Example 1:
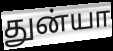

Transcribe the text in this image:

துன்யா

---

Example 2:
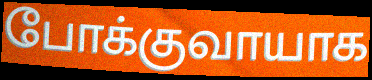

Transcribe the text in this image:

போக்குவாயாக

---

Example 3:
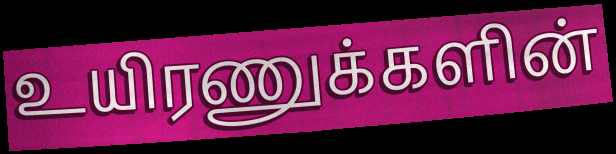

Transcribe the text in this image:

உயிரணுக்களின்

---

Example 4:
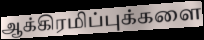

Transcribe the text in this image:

ஆக்கிரமிப்புக்களை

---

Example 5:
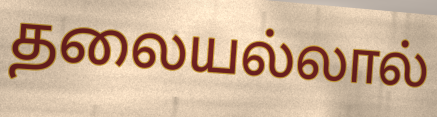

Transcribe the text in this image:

தலையல்லால்